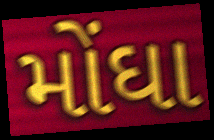
મોંઘા